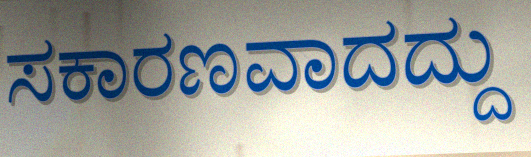
ಸಕಾರಣವಾದದ್ದು